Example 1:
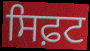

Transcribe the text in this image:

ਸਿਫ਼ਟ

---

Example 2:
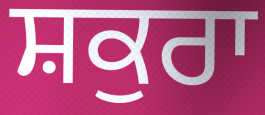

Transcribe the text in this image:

ਸ਼ਕੁਰਾ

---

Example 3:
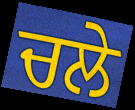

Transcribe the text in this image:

ਚਲੇ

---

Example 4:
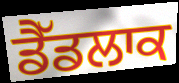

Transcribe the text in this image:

ਡੈੱਡਲਾਕ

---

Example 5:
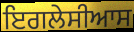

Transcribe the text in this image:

ਇਗਲੇਸੀਆਸ